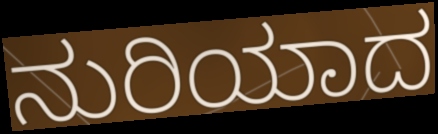
ನುರಿಯಾದ